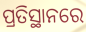
ପ୍ରତିସ୍ଥାନରେ